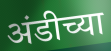
अंडीच्या